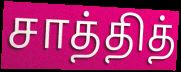
சாத்தித்